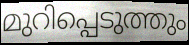
മുറിപ്പെടുത്തും